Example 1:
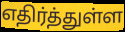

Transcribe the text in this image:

எதிர்த்துள்ள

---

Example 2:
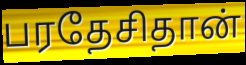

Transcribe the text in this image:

பரதேசிதான்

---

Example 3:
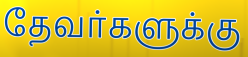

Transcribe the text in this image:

தேவர்களுக்கு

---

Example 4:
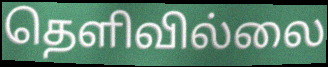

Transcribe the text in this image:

தெளிவில்லை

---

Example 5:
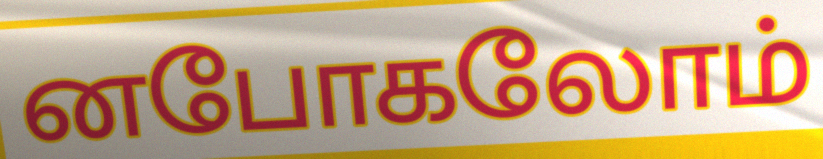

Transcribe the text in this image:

னபோகலோம்